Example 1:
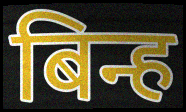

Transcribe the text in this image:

बिन्ह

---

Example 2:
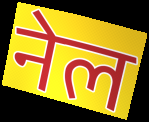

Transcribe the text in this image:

नेल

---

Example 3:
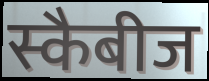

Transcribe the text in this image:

स्कैबीज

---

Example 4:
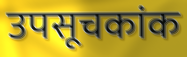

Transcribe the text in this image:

उपसूचकांक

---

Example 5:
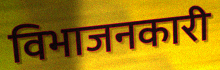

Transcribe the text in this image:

विभाजनकारी